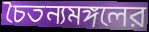
চৈতন্যমঙ্গলের